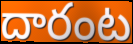
దారంట